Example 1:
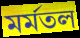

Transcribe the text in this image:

মর্মতল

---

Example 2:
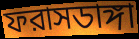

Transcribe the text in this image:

ফরাসডাঙ্গা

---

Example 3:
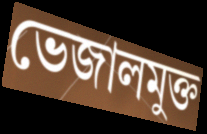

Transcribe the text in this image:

ভেজালমুক্ত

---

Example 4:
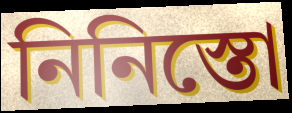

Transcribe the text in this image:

নিনিস্তো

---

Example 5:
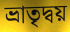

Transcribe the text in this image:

ভ্রাতৃদ্বয়